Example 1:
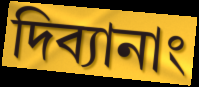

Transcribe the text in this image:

দিব্যানাং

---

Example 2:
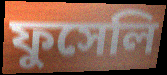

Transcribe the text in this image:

ফুসেলি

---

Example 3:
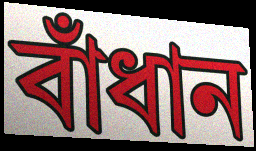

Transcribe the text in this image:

বাঁধান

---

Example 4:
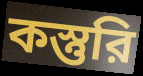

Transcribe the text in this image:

কস্তুরি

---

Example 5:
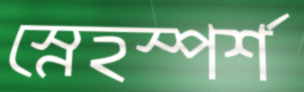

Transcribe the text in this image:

স্নেহস্পর্শ